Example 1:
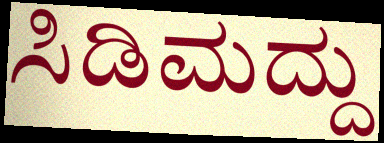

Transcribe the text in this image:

ಸಿಡಿಮದ್ದು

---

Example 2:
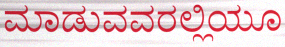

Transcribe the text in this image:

ಮಾಡುವವರಲ್ಲಿಯೂ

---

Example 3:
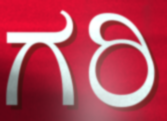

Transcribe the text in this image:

ಗರಿ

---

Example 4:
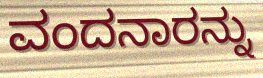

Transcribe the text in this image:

ವಂದನಾರನ್ನು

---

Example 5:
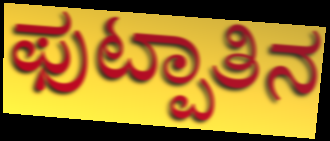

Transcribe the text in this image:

ಫುಟ್ಪಾತಿನ